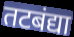
तटबंद्या